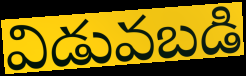
విడువబడి